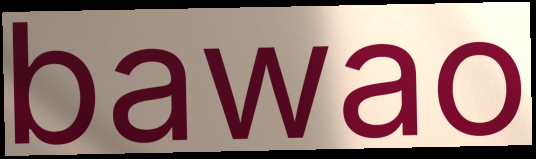
bawao